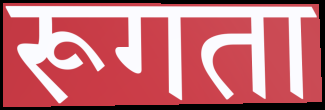
रूगता